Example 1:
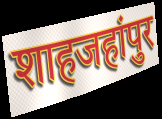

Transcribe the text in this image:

शाहजहांपुर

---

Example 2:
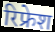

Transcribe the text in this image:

रिफ्रेश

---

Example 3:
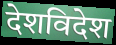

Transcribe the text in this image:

देशविदेश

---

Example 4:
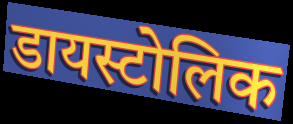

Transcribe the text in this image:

डायस्टोलिक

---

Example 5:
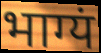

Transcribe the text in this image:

भाग्यं